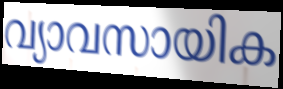
വ്യാവസായിക